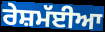
ਰੇਸ਼ਮੱਈਆ